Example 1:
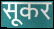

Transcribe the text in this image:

सूकर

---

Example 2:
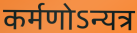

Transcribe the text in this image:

कर्मणोऽन्यत्र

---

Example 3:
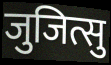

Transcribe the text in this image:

जुजित्सु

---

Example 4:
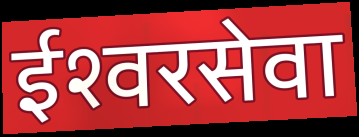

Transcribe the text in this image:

ईश्वरसेवा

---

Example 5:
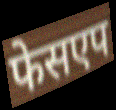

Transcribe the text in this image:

फेसएप